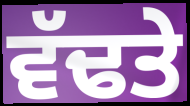
ਵੱਢਤੇ